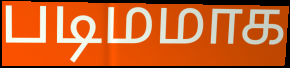
படிமமாக